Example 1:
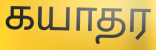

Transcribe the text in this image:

கயாதர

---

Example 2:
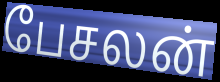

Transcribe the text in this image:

பேசலன்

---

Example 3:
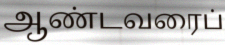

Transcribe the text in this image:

ஆண்டவரைப்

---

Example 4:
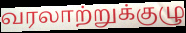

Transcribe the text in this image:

வரலாற்றுக்குழு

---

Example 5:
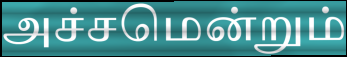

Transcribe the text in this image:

அச்சமென்றும்